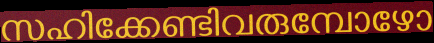
സഹിക്കേണ്ടിവരുമ്പോഴോ